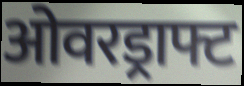
ओवरड्राफ्ट